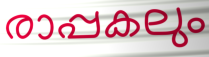
രാപ്പകലും